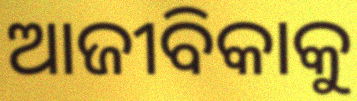
ଆଜୀବିକାକୁ